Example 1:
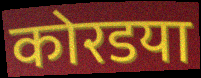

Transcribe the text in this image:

कोरडया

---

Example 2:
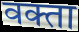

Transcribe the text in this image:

वक्ता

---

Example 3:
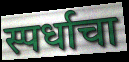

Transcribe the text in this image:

स्पर्धाचा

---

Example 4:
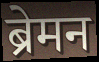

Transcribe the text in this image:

ब्रेमन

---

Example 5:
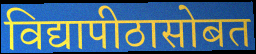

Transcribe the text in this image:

विद्यापीठासोबत